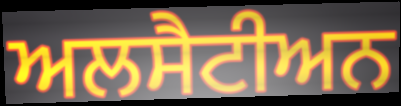
ਅਲਸੈਟੀਅਨ